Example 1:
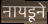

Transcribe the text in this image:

नायडूने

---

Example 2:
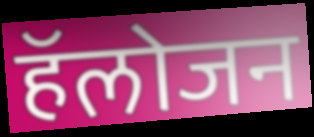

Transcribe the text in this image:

हॅलोजन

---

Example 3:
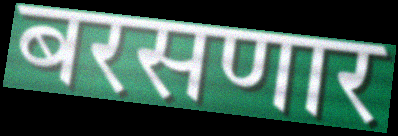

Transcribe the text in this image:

बरसणार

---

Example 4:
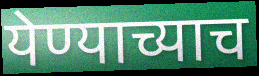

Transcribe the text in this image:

येण्याच्याच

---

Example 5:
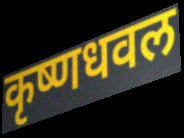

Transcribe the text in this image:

कृष्णधवल